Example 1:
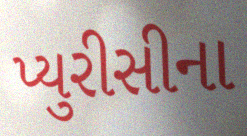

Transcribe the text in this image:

પ્યુરીસીના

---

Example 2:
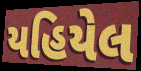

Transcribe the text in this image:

યહિયેલ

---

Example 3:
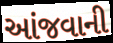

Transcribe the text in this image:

આંજવાની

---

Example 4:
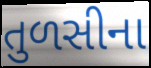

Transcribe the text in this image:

તુળસીના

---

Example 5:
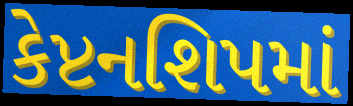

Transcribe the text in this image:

કેપ્ટનશિપમાં